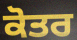
ਕੋਤਰ